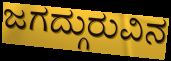
ಜಗದ್ಗುರುವಿನ